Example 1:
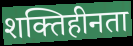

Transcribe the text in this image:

शक्तिहीनता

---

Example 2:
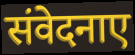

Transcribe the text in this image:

संवेदनाए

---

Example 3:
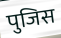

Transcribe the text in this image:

पुजिस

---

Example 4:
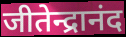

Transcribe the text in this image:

जीतेन्द्रानंद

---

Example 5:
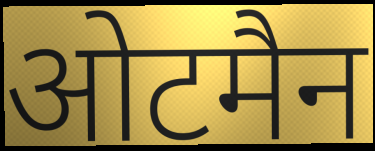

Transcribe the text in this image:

ओटमैन